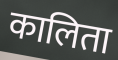
कालिता